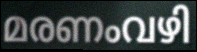
മരണംവഴി